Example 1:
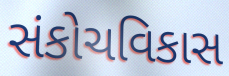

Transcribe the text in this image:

સંકોચવિકાસ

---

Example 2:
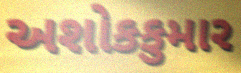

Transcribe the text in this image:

અશોકકુમાર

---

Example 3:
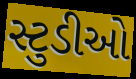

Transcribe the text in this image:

સ્ટુડીઓ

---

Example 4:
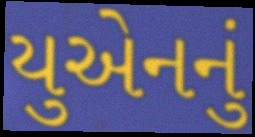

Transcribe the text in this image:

યુએનનું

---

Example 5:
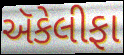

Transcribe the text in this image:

ઍકેલીફા